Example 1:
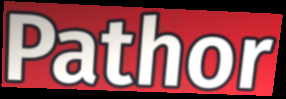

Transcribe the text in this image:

Pathor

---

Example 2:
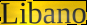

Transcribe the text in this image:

Libano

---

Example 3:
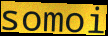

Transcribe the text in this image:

somoi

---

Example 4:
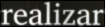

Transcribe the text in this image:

realizar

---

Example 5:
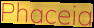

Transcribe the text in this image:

Phaceia